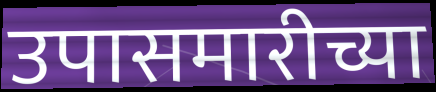
उपासमारीच्या